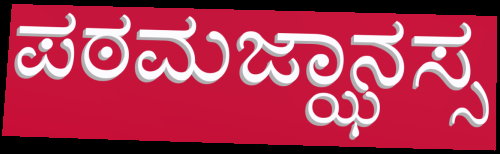
ಪಠಮಜ್ಝಾನಸ್ಸ